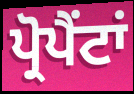
ਪ੍ਰੋਪੈਂਟਾਂ